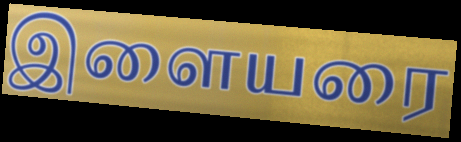
இளையரை